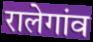
रालेगांव